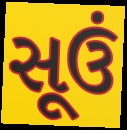
સૂઉં